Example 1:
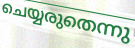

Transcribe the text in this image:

ചെയ്യരുതെന്നു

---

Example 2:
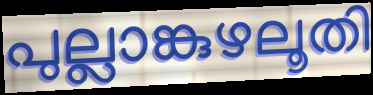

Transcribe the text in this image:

പുല്ലാങ്കുഴലൂതി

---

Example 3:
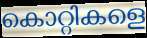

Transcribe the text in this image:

കൊറ്റികളെ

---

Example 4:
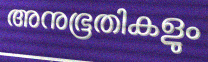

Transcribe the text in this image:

അനുഭൂതികളും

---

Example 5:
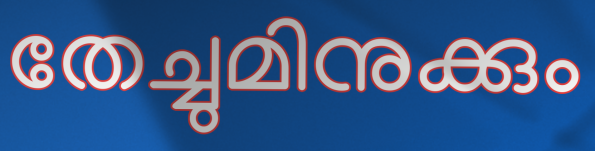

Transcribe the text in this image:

തേച്ചുമിനുക്കും